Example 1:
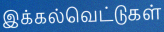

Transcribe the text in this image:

இக்கல்வெட்டுகள்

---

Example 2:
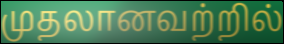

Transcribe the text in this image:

முதலானவற்றில்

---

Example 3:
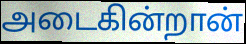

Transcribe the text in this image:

அடைகின்றான்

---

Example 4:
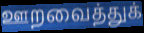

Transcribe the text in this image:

ஊறவைத்துக்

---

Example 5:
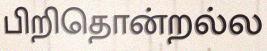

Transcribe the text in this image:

பிறிதொன்றல்ல